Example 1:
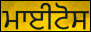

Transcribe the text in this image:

ਮਾਈਟੋਸ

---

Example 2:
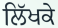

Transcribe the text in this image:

ਲਿੱਖਕੇ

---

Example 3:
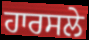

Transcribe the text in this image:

ਹਾਰਸਲੇ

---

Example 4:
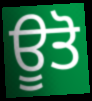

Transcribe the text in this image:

ਊਤੋ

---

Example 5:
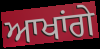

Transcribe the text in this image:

ਆਖਾਂਗੇ